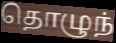
தொழுந்